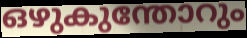
ഒഴുകുന്തോറും